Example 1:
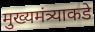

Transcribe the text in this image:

मुख्यमंत्र्याकडे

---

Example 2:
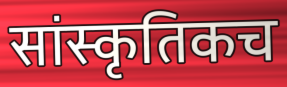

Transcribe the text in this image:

सांस्कृतिकच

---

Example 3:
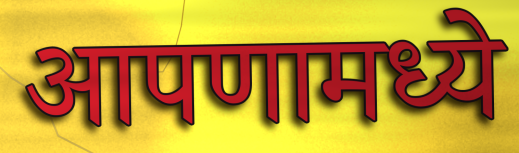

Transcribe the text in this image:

आपणामध्ये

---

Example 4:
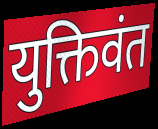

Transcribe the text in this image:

युक्तिवंत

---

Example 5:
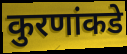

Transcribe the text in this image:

कुरणांकडे